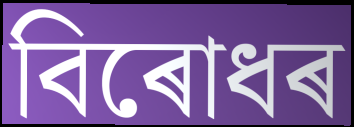
বিৰোধৰ